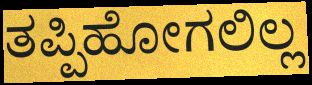
ತಪ್ಪಿಹೋಗಲಿಲ್ಲ